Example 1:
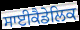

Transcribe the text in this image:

ਸਾਈਕੈਡੇਲਿਕ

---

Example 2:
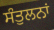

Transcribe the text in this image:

ਸੰਤੁਲਨਾਂ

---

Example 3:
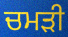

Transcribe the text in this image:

ਚਮਡ਼ੀ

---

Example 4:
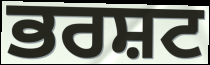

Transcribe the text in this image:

ਭਰਸ਼ਟ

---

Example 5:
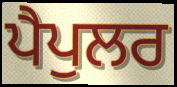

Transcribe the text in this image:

ਪੈਪੁਲਰ